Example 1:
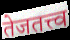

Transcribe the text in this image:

तेजतत्त्व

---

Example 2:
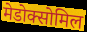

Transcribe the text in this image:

मेडोक्सोमिल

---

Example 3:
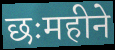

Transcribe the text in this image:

छःमहीने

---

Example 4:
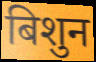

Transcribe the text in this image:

बिशुन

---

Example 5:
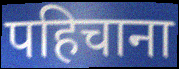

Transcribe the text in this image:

पहिचाना